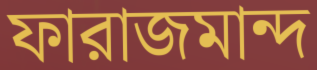
ফারাজমান্দ